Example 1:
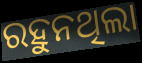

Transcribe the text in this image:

ରହୁନଥିଲା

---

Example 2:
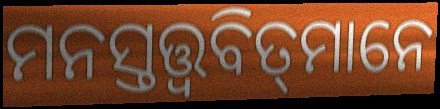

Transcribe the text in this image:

ମନସ୍ତତ୍ତ୍ୱବିତ୍‌ମାନେ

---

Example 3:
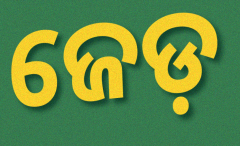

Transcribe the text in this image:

ଜେଡ଼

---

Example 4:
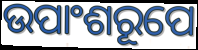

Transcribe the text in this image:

ଉପାଂଶରୂପେ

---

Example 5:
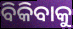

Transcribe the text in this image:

ବିକିବାକୁ